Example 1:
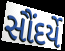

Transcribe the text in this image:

સૌંદર્યે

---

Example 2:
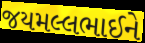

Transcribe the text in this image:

જયમલ્લભાઈને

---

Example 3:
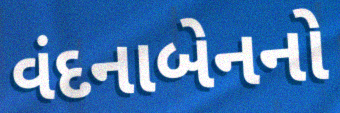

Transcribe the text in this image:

વંદનાબેનનો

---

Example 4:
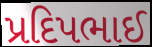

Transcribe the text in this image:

પ્રદિપભાઈ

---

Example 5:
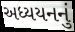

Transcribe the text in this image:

અધ્યયનનું